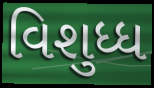
વિશુધ્ધ